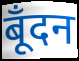
बूँदन